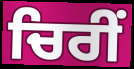
ਚਿਰੀਂ